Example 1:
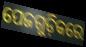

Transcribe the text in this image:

ପେଜଗୁଡ଼ିକରେ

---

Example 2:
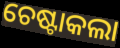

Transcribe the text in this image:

ଚେଷ୍ଟାକଲା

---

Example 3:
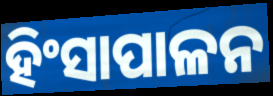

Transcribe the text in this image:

ହିଂସାପାଳନ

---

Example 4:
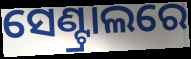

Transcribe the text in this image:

ସେଣ୍ଟ୍ରାଲରେ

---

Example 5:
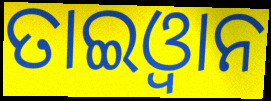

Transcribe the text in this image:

ତାଇଓ୍ୱାନ